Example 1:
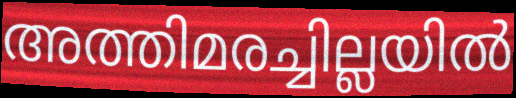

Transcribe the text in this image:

അത്തിമരച്ചില്ലയിൽ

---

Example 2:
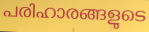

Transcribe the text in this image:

പരിഹാരങ്ങളുടെ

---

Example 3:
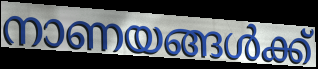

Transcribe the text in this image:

നാണയങ്ങൾക്ക്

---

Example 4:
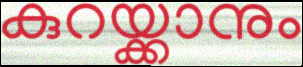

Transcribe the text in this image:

കുറയ്ക്കാനും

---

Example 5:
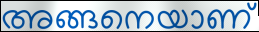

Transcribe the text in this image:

അങ്ങനെയാണ്